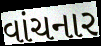
વાંચનાર